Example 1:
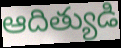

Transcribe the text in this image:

ఆదిత్యుడి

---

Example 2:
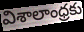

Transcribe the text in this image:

విశాలాంధ్రకు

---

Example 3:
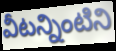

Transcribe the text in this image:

వీటన్నింటిని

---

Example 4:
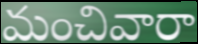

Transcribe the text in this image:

మంచివారా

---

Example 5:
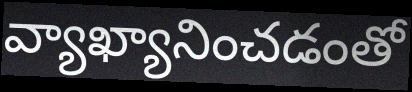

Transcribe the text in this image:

వ్యాఖ్యానించడంతో